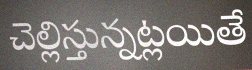
చెల్లిస్తున్నట్లయితే